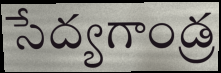
సేద్యగాండ్ర